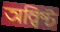
অন্বিষ্ট